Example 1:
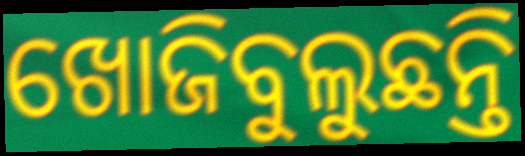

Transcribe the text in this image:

ଖୋଜିବୁଲୁଛନ୍ତି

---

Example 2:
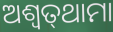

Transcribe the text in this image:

ଅଶ୍ବତ୍‌ଥାମା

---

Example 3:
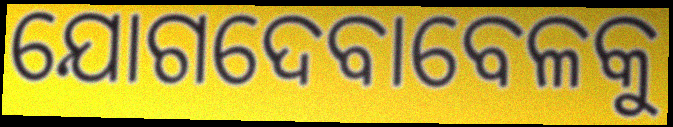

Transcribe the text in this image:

ଯୋଗଦେବାବେଳକୁ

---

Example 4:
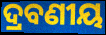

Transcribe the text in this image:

ଦ୍ରବଣୀୟ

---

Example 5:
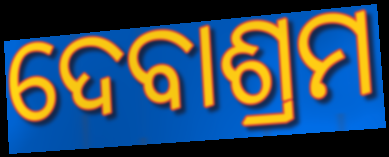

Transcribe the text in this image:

ଦେବାଶ୍ରମ